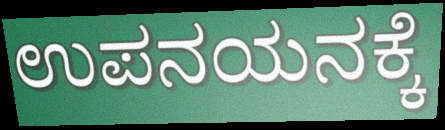
ಉಪನಯನಕ್ಕೆ